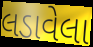
લડાવેલા